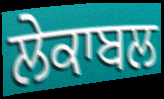
ਲੇਕਾਬਲ